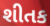
શીતક